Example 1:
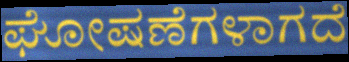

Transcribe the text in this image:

ಘೋಷಣೆಗಳಾಗದೆ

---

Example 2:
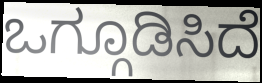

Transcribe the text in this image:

ಒಗ್ಗೂಡಿಸಿದೆ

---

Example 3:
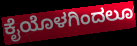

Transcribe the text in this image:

ಕೈಯೊಳಗಿಂದಲೂ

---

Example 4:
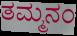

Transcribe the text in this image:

ತಮ್ಮನಂ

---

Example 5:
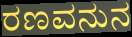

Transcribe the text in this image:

ರಣವನುನ